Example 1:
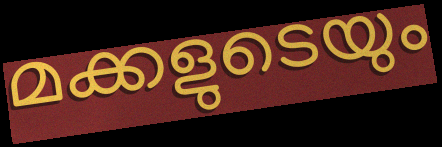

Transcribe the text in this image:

മക്കളുടെയും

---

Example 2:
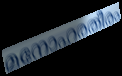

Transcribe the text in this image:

മനോഹരതീരം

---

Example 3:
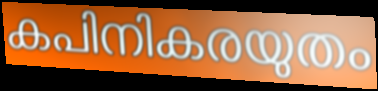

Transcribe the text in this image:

കപിനികരയുതം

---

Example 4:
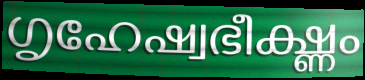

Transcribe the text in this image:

ഗൃഹേഷ്വഭീക്ഷ്ണം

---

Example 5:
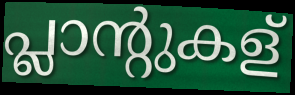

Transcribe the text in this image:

പ്ലാന്റുകള്